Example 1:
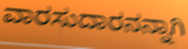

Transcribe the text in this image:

ವಾರಸುದಾರನನ್ನಾಗಿ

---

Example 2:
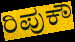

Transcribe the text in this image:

ರಿಪುಕೌ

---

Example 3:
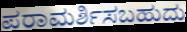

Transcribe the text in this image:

ಪರಾಮರ್ಶಿಸಬಹುದು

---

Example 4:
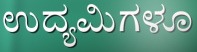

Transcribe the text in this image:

ಉದ್ಯಮಿಗಳೂ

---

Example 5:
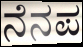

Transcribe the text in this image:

ನೆನಪ